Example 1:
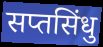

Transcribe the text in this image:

सप्तसिंधु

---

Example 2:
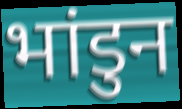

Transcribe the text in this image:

भांडुन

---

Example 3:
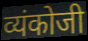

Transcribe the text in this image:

व्यंकोजी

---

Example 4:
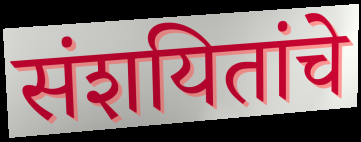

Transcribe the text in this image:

संशयितांचे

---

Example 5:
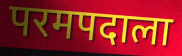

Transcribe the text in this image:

परमपदाला